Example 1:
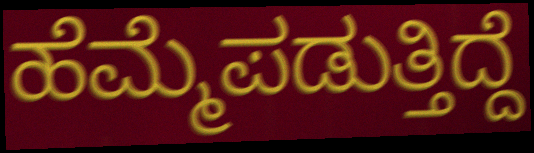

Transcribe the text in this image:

ಹೆಮ್ಮೆಪಡುತ್ತಿದ್ದೆ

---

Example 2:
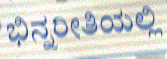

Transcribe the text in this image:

ಭಿನ್ನರೀತಿಯಲ್ಲಿ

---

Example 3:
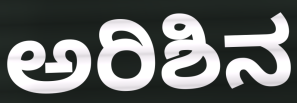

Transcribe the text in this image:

ಅರಿಶಿನ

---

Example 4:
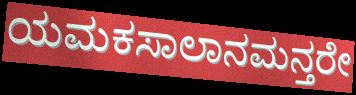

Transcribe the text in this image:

ಯಮಕಸಾಲಾನಮನ್ತರೇ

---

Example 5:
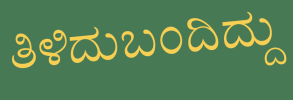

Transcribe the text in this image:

ತಿಳಿದುಬಂದಿದ್ದು